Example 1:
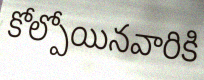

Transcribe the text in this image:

కోల్పోయినవారికి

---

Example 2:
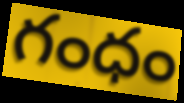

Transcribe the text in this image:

గంధం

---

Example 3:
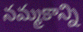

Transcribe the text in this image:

నమ్మకాన్ని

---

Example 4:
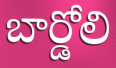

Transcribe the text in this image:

బార్డోలి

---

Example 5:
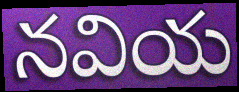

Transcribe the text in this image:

నవియ